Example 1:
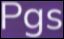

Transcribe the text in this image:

Pgs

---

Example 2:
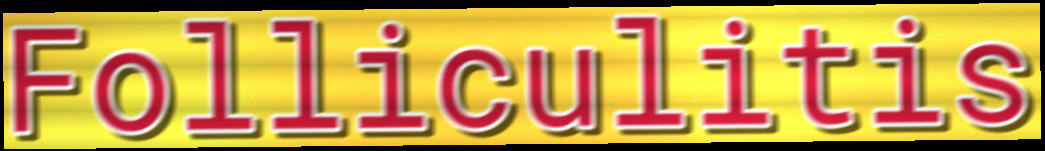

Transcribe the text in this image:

Folliculitis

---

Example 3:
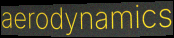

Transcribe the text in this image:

aerodynamics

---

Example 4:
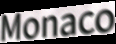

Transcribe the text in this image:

Monaco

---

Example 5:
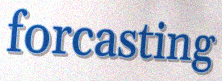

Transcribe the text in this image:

forcasting